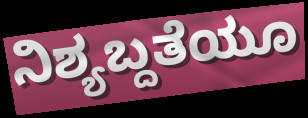
ನಿಶ್ಯಬ್ದತೆಯೂ